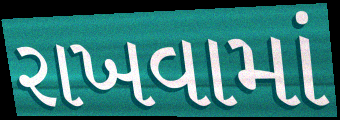
રાખવામાં